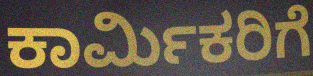
ಕಾರ್ಮಿಕರಿಗೆ